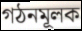
গঠনমূলক